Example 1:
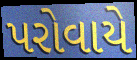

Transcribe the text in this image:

પરોવાયે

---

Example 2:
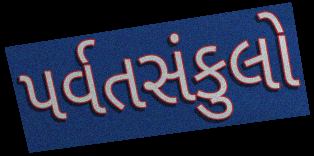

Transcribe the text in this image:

પર્વતસંકુલો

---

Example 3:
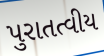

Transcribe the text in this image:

પુરાતત્વીય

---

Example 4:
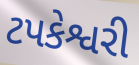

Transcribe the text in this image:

ટપકેશ્વરી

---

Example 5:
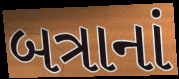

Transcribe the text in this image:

બત્રાનાં